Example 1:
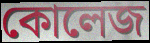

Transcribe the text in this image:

কোলেজ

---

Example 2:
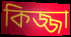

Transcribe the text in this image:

কিজ্জা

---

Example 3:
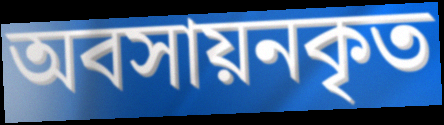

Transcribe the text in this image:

অবসায়নকৃত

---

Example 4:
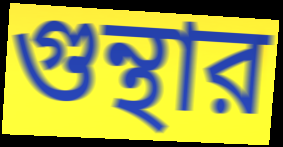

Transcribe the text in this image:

গুন্থার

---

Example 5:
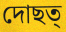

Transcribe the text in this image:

দোছত্